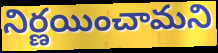
నిర్ణయించామని